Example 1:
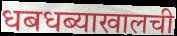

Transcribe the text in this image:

धबधब्याखालची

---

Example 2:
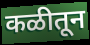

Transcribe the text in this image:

कळीतून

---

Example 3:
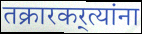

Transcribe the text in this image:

तक्रारकर्त्यांना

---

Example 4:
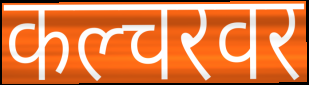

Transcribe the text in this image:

कल्चरवर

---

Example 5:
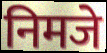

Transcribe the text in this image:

निमजे